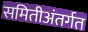
समितीअंतर्गत